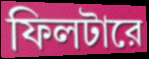
ফিলটারে